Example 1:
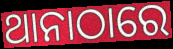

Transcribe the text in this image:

ଥାନାଠାରେ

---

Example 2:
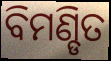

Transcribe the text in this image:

ବିମଣ୍ଡିତ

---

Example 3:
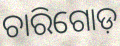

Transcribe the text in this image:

ଚାରିଗୋଡ଼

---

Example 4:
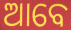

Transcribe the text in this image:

ଆବେ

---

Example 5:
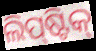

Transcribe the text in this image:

ଲିପ୍‍ଷ୍ଟିକ୍